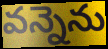
వన్నెను